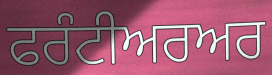
ਫਰੰਟੀਅਰਅਰ